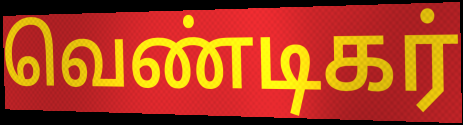
வெண்டிகர்